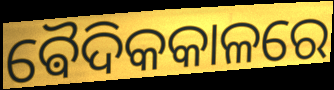
ଵୈଦିକକାଳରେ